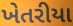
ખેતરીયા